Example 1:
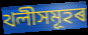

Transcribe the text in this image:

থলীসমূহৰ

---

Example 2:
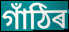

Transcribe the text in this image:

গাঁঠিৰ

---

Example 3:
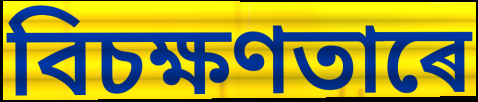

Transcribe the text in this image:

বিচক্ষণতাৰে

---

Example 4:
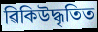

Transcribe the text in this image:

ৱিকিউদ্ধৃতিত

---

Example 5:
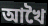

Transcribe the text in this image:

আখৈ